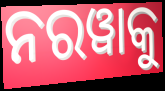
ନରୱାକୁ